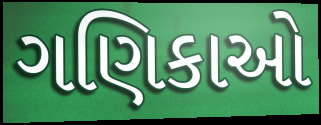
ગણિકાઓ